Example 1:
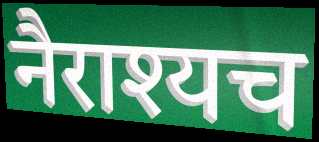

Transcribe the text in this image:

नैराश्यच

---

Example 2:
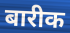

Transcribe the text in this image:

बारीक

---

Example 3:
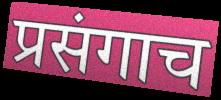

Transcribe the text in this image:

प्रसंगाच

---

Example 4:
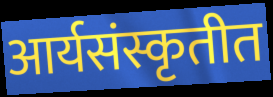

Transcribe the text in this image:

आर्यसंस्कृतीत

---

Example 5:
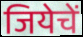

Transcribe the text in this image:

जियेचें